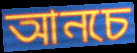
আনচে